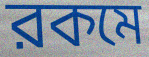
রকমে